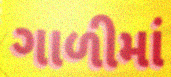
ગાળીમાં